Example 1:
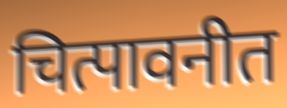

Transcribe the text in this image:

चित्पावनीत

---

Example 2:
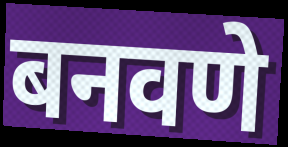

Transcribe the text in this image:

बनवणे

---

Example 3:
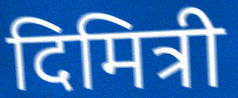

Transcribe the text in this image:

दिमित्री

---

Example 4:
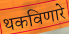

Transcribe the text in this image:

थकविणारे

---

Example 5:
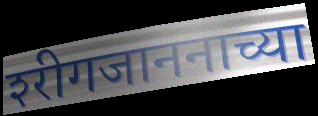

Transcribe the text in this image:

श्रीगजाननाच्या